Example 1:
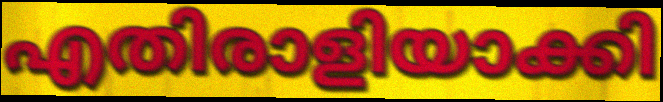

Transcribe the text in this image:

എതിരാളിയാക്കി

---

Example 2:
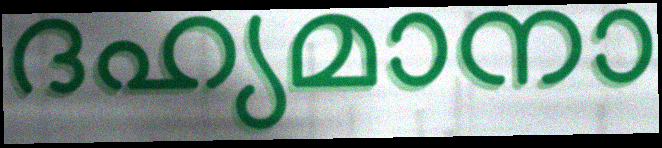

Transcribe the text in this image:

ദഹ്യമാനാ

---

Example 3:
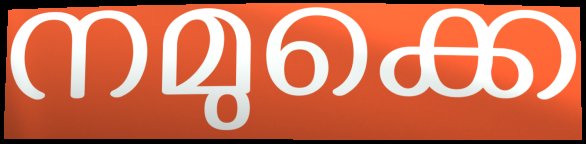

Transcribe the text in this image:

നമുക്കെ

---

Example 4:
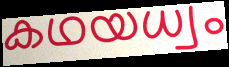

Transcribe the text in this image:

കഥയധ്വം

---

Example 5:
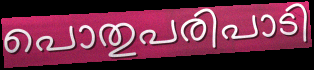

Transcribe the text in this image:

പൊതുപരിപാടി